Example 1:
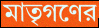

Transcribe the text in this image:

মাতৃগণের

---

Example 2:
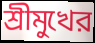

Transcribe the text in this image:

শ্রীমুখের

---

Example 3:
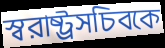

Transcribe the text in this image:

স্বরাষ্ট্রসচিবকে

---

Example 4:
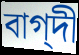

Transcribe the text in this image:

বাগ্‌দী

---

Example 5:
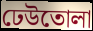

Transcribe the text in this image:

ঢেউতোলা